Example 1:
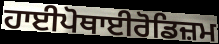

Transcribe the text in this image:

ਹਾਈਪੋਥਾਈਰੋਡਿਜ਼ਮ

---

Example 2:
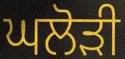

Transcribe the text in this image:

ਘਲੋਡ਼ੀ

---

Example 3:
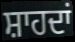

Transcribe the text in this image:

ਸ਼ਾਹਦਾਂ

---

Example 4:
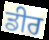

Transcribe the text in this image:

ਡੀਰ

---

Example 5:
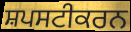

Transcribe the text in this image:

ਸ਼ਪਸਟੀਕਰਨ